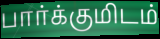
பார்க்குமிடம்